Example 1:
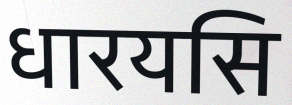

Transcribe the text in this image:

धारयसि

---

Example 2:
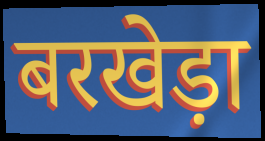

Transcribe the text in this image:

बरखेड़ा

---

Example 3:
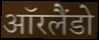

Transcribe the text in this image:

ऑरलैंडो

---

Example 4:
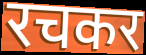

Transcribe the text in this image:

रचकर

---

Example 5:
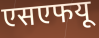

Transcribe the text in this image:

एसएफयू